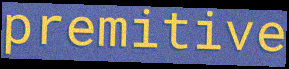
premitive